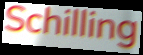
Schilling